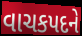
વાચકપદને